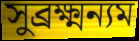
সুব্রক্ষ্মন্যম